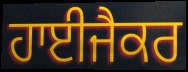
ਹਾਈਜੈਕਰ